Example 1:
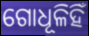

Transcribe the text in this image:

ଗୋଧୂଳିହିଁ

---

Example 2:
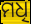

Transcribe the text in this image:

ମଧି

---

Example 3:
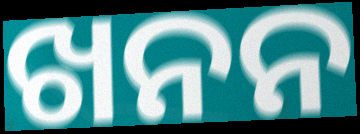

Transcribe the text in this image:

ଖନନ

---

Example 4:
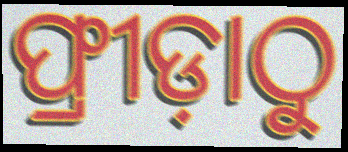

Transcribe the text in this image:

ଫ୍ରୀଡ଼ାଠୁ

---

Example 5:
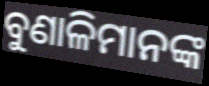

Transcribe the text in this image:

ବୁଣାଳିମାନଙ୍କ